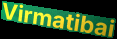
Virmatibai